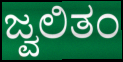
ಜ್ವಲಿತಂ